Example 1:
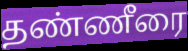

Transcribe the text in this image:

தண்ணீரை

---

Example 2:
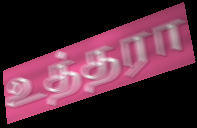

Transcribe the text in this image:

உத்தரா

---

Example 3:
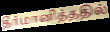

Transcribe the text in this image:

தீர்மானித்ததில்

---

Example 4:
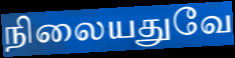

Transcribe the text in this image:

நிலையதுவே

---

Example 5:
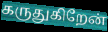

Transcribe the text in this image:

கருதுகிறேன்